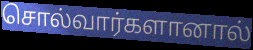
சொல்வார்களானால்